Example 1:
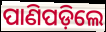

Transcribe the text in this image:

ପାଣିପଡ଼ିଲେ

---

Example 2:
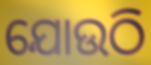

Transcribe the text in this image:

ଯୋଉଠି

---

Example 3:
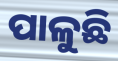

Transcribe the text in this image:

ପାଳୁଛି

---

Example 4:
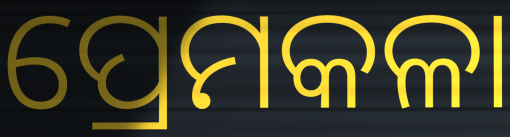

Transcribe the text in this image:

ପ୍ରେମକଳା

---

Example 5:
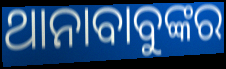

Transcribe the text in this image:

ଥାନାବାବୁଙ୍କର